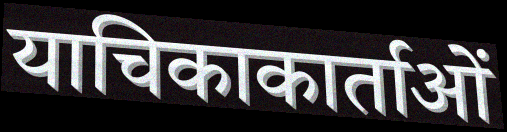
याचिकाकार्ताओं